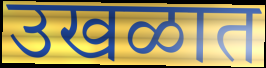
उखळात